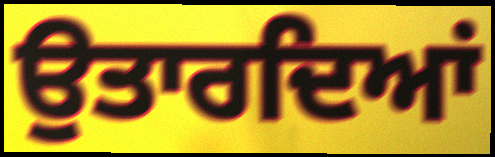
ਉਤਾਰਦਿਆਂ